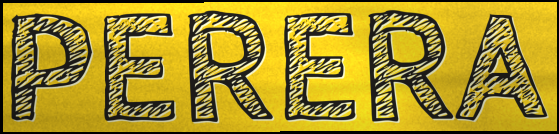
PERERA